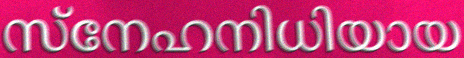
സ്നേഹനിധിയായ